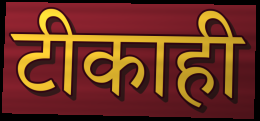
टीकाही